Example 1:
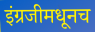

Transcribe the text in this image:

इंग्रजीमधूनच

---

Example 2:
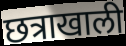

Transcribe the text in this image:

छत्राखाली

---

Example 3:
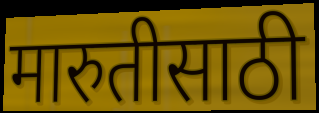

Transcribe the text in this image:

मारुतीसाठी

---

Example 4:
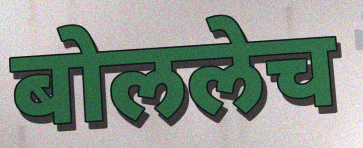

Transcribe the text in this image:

बोललेच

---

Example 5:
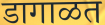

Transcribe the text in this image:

डागाळत